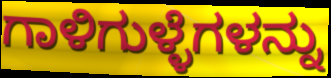
ಗಾಳಿಗುಳ್ಳೆಗಳನ್ನು